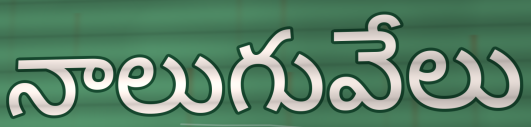
నాలుగువేలు